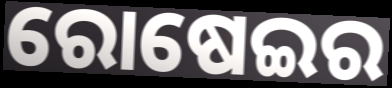
ରୋଷେଇର